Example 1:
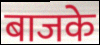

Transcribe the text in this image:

बाजके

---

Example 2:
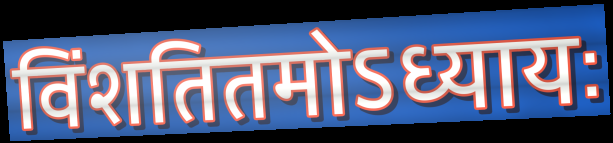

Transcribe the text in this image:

विंशतितमोऽध्यायः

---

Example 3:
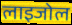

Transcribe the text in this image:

लाइजोल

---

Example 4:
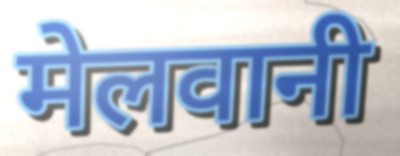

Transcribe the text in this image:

मेलवानी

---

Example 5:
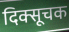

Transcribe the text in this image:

दिक्सूचक